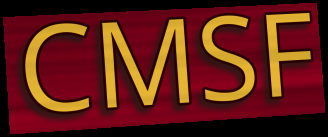
CMSF